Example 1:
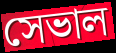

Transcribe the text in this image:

সেভাল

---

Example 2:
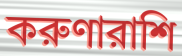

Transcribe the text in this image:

করুণারাশি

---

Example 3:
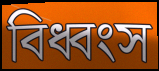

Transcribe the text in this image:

বিধ্বংস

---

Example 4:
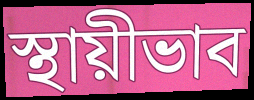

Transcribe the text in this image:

স্থায়ীভাব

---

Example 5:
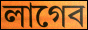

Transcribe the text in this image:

লাগেব